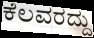
ಕೆಲವರದ್ದು